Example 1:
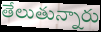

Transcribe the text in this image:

తేలుతున్నారు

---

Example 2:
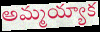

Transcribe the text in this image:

అమ్మయ్యాక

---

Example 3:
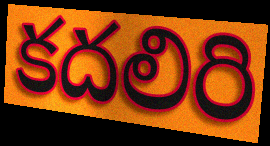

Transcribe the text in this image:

కదలిరి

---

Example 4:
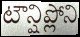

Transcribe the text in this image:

టౌన్షిప్లోని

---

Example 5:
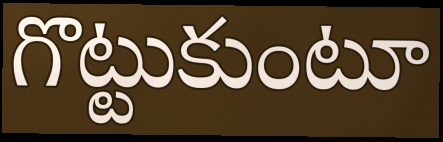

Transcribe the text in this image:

గొట్టుకుంటూ